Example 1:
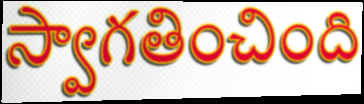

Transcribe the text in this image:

స్వాగతించింది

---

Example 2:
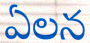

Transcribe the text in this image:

ఏలన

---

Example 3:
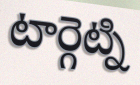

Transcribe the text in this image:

టార్గెట్ని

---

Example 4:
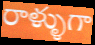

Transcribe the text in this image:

రాళ్ళుగా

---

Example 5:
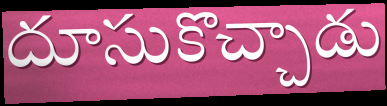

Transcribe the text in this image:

దూసుకొచ్చాడు